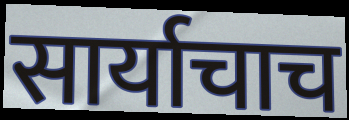
सार्याचाच